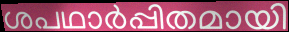
ശപഥാർപ്പിതമായി